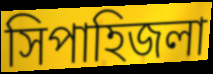
সিপাহিজলা